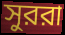
সুররা